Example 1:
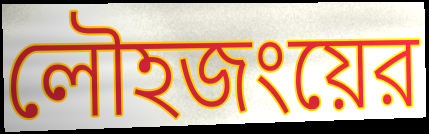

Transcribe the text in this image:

লৌহজংয়ের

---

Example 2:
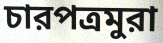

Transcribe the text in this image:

চারপত্রমুরা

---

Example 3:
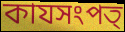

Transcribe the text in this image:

কাযসংপত্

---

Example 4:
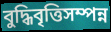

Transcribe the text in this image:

বুদ্ধিবৃত্তিসম্পন্ন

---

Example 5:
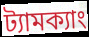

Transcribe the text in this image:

ট্যামক্যাং